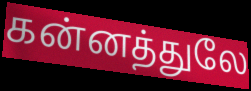
கன்னத்துலே